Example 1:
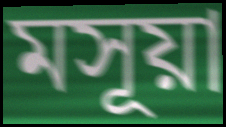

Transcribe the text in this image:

মসূয়া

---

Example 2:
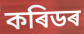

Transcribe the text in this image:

কৰিডৰ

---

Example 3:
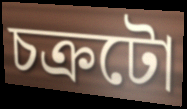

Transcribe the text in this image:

চক্ৰটো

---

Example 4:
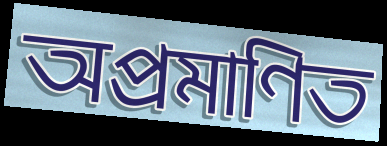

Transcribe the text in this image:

অপ্ৰমাণিত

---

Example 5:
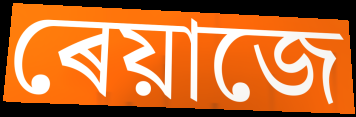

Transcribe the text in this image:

ৰেয়াজে